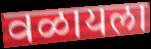
वळायला